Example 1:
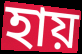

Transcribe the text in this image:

হায়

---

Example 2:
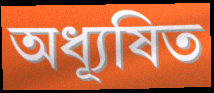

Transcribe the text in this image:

অধ্যূষিত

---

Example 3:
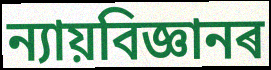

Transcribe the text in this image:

ন্যায়বিজ্ঞানৰ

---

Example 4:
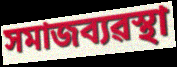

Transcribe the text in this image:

সমাজব্যৱস্থা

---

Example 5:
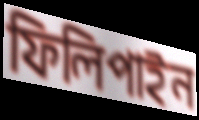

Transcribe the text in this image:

ফিলিপাইন